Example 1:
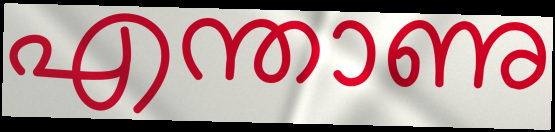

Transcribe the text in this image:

എന്താണു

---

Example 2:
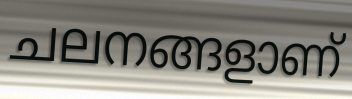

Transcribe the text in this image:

ചലനങ്ങളാണ്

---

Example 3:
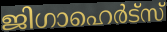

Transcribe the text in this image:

ജിഗാഹെർട്സ്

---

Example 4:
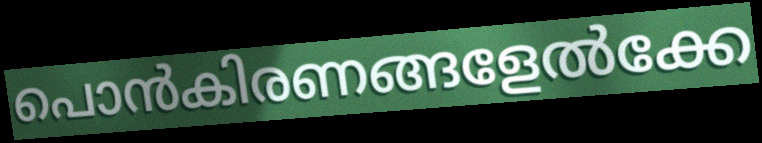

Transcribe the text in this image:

പൊൻകിരണങ്ങളേൽക്കേ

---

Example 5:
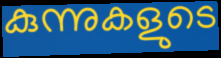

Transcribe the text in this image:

കുന്നുകളുടെ